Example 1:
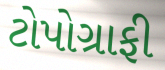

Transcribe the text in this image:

ટોપોગ્રાફી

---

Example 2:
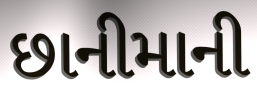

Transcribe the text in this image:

છાનીમાની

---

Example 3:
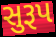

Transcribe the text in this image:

સુરૂપ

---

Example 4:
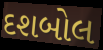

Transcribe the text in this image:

દશબોલ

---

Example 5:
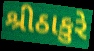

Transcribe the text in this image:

શ્રીઠાકુરે